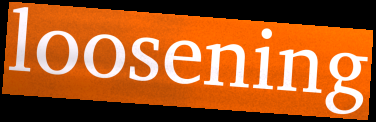
loosening